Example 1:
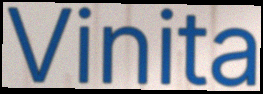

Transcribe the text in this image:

Vinita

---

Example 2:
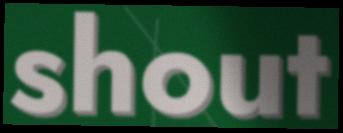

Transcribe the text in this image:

shout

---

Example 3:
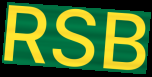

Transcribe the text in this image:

RSB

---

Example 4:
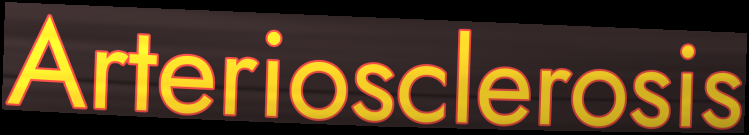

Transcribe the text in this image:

Arteriosclerosis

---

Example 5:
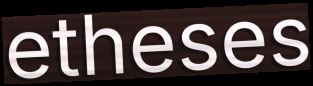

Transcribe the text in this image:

etheses